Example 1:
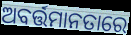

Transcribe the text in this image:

ଅବର୍ତ୍ତମାନତାରେ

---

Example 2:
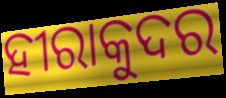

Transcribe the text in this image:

ହୀରାକୁଦର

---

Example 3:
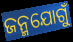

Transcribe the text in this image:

ଜନ୍ମଯୋଗୁଁ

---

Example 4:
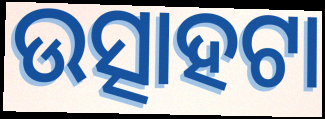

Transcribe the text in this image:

ଉତ୍ସାହଟା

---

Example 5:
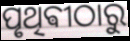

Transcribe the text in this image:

ପୃଥିଵୀଠାରୁ